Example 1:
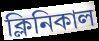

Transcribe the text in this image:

ক্লিনিকাল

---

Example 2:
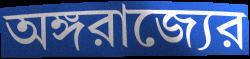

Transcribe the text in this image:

অঙ্গরাজ্যের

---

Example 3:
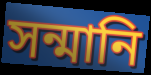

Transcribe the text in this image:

সন্মানি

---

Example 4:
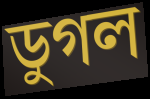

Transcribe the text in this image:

ডুগল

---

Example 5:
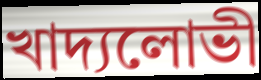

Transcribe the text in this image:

খাদ্যলোভী